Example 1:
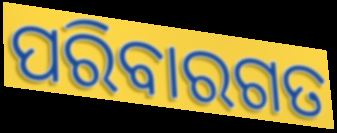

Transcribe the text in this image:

ପରିବାରଗତ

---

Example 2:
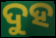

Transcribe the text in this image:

ଦୁହ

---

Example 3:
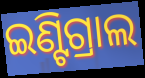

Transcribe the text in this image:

ଇଣ୍ଟିଗ୍ରାଲ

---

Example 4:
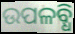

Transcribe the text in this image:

ଉପଳବ୍ଧି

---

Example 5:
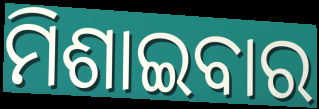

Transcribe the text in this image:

ମିଶାଇବାର